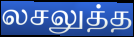
லசலுத்த